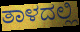
ತಾಳದಲ್ಲಿ